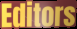
Editors